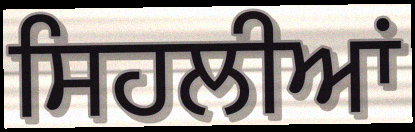
ਸਿਹਲੀਆਂ